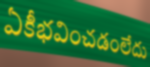
ఏకీభవించడంలేదు